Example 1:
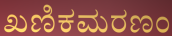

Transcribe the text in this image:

ಖಣಿಕಮರಣಂ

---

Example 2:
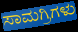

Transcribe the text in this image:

ಸಾಮಗ್ರಿಗಳು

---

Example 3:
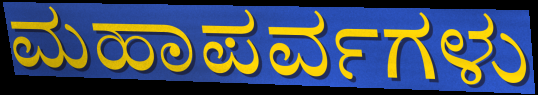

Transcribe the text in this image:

ಮಹಾಪರ್ವಗಳು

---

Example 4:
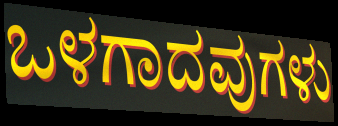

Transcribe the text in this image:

ಒಳಗಾದವುಗಳು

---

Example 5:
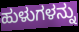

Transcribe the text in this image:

ಹುಳುಗಳನ್ನು